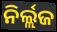
ନିର୍ଲ୍ଲଜ